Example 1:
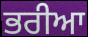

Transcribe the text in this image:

ਭਰੀਆ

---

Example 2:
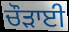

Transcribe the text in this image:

ਚੌੜਾਈ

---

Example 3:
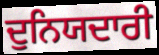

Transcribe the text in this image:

ਦੁਨਿਯਦਾਰੀ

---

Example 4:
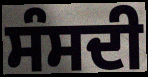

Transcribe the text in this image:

ਸੰਸਦੀ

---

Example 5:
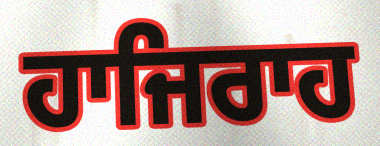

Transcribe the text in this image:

ਹਾਜਿਰਾਹ